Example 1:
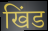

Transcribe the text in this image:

खिंड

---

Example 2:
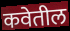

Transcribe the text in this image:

कवेतील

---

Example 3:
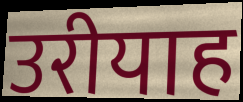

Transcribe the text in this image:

उरीयाह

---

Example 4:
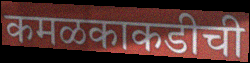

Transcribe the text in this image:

कमळकाकडीची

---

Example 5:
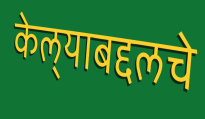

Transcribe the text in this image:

केल्याबद्दलचे